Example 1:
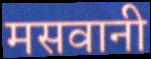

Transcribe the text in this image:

मसवानी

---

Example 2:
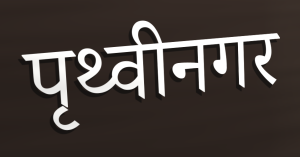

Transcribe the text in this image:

पृथ्वीनगर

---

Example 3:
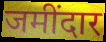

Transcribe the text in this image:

जमींदार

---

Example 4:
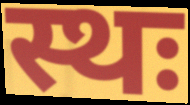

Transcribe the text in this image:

स्थः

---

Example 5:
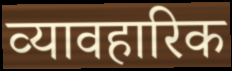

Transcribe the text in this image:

व्‍यावहारिक